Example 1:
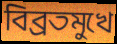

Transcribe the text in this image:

বিব্রতমুখে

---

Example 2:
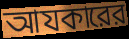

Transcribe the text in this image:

আযকারের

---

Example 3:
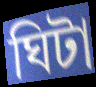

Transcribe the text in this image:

ঘিটা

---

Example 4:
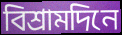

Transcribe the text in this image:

বিশ্রামদিনে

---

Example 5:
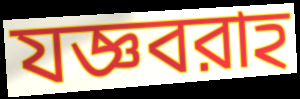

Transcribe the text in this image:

যজ্ঞবরাহ